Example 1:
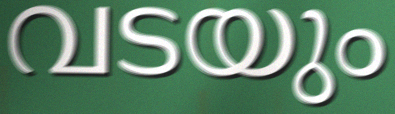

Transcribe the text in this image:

വടയും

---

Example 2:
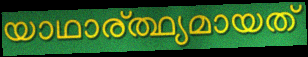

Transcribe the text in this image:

യാഥാര്ത്ഥ്യമായത്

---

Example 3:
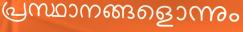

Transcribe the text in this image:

പ്രസ്ഥാനങ്ങളൊന്നും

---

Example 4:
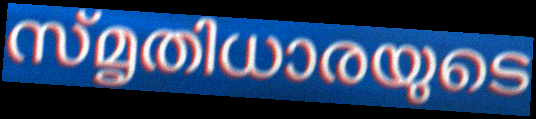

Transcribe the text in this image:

സ്മൃതിധാരയുടെ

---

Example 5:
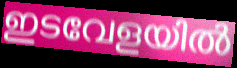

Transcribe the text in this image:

ഇടവേളയിൽ